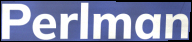
Perlman